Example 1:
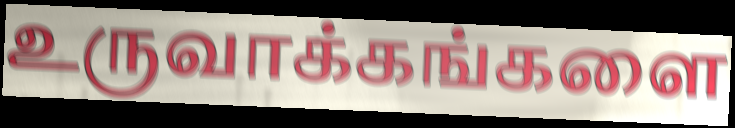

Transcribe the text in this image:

உருவாக்கங்களை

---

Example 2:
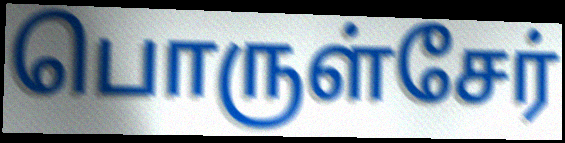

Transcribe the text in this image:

பொருள்சேர்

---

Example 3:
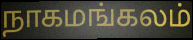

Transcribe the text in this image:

நாகமங்கலம்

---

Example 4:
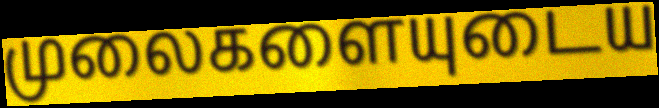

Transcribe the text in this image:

முலைகளையுடைய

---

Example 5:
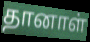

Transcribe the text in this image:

தானாள்